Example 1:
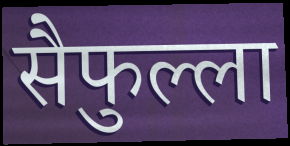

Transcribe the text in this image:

सैफुल्ला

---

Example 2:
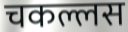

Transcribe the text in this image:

चकल्लस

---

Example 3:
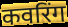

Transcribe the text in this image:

कवरिंग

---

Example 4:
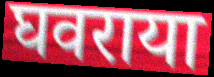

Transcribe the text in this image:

घवराया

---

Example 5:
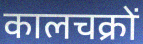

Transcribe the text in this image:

कालचक्रों